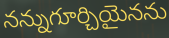
నన్నుగూర్చియైనను